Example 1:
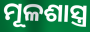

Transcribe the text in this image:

ମୂଳଶାସ୍ତ୍ର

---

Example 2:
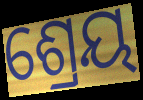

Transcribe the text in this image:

ଶ୍ରେୟ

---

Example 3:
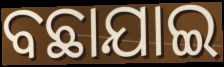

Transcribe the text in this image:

ବଛାଯାଇ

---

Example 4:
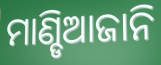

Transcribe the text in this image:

ମାଣ୍ଡିଆଜାନି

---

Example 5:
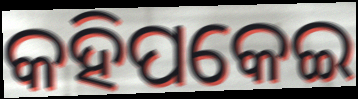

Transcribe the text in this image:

କହିପକେଇ